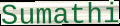
Sumathi